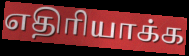
எதிரியாக்க